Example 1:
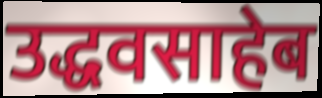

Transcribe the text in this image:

उद्धवसाहेब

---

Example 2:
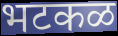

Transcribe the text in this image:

भटकळ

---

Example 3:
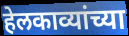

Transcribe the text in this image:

हेलकाव्यांच्या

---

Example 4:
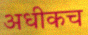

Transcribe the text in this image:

अधीकच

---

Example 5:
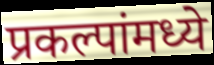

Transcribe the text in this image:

प्रकल्पांमध्ये